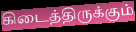
கிடைத்திருக்கும்